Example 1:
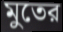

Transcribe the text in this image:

মুতের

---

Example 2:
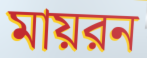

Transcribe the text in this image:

মায়রন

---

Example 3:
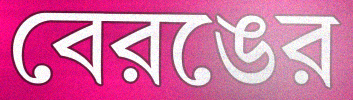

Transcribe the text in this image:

বেরঙের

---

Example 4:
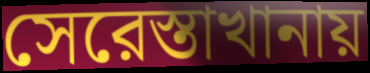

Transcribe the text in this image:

সেরেস্তাখানায়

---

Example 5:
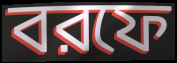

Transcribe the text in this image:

বরফে